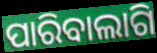
ପାରିବାଲାଗି